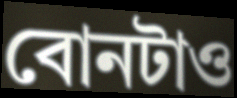
বোনটাও